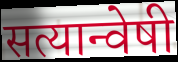
सत्यान्वेषी